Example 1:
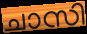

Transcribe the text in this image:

ചാസി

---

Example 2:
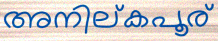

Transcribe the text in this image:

അനില്കപൂര്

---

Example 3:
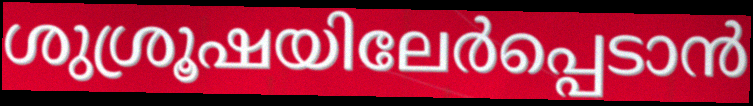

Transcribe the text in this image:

ശുശ്രൂഷയിലേർപ്പെടാൻ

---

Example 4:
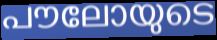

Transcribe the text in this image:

പൗലോയുടെ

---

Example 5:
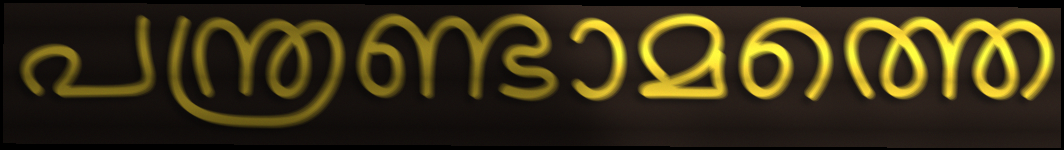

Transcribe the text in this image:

പന്ത്രണ്ടാമത്തെ